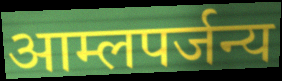
आम्लपर्जन्य